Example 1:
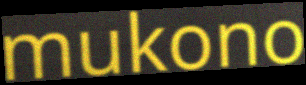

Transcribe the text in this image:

mukono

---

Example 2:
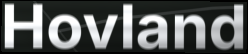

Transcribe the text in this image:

Hovland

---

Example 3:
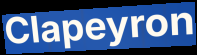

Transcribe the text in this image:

Clapeyron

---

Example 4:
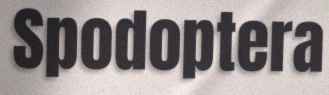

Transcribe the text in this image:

Spodoptera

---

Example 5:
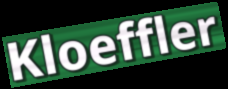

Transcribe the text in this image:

Kloeffler